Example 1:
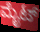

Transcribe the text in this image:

ಮೈಟ್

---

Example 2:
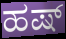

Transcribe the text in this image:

ಹಷ್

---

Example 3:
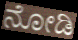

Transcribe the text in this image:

ನೋಡಿ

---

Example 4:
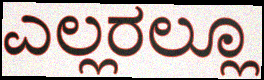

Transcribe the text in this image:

ಎಲ್ಲರಲ್ಲೂ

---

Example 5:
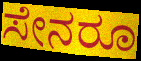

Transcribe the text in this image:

ಸೇನರೂ